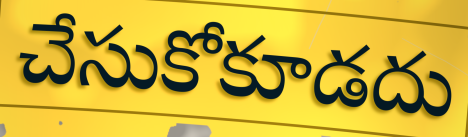
చేసుకోకూడదు